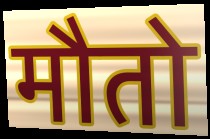
मौतो